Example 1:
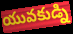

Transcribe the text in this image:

యువకుడ్ని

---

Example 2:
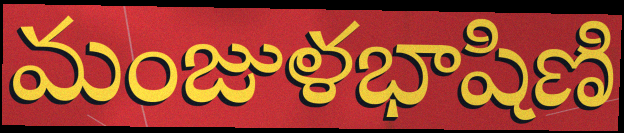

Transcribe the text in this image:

మంజుళభాషిణి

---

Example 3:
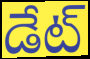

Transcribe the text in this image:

డేట్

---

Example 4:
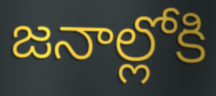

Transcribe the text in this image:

జనాల్లోకి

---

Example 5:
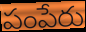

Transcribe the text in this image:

పంపేరు